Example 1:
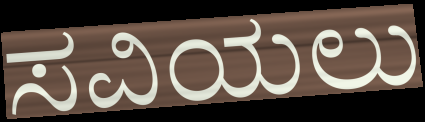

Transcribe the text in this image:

ಸವಿಯಲು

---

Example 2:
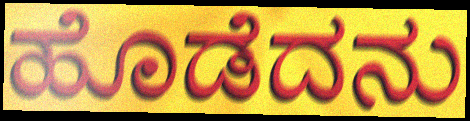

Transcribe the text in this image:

ಹೊಡೆದನು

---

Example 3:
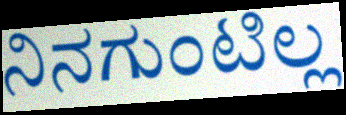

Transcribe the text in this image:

ನಿನಗುಂಟಿಲ್ಲ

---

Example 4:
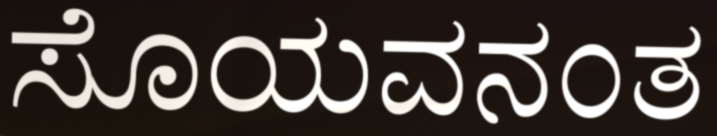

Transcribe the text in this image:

ಸೊಯವನಂತ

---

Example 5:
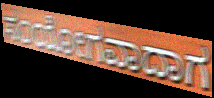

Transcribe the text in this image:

ಸಂಯೋಗವಾದಾಗ